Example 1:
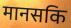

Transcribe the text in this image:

मानसकि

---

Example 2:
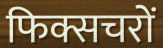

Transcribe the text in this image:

फिक्सचरों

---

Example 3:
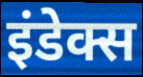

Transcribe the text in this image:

इंडेक्स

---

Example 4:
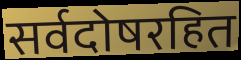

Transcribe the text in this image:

सर्वदोषरहित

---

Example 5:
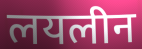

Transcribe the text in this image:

लयलीन